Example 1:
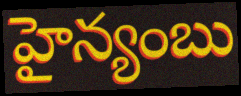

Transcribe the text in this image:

హైన్యంబు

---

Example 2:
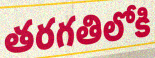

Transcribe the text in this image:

తరగతిలోకి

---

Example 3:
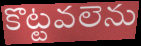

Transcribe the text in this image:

కొట్టవలెను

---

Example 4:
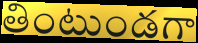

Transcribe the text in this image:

తింటుండగా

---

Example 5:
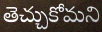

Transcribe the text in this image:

తెచ్చుకోమని